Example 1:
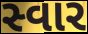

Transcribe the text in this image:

સ્વાર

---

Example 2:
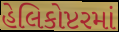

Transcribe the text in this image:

હેલિકોપ્ટરમાં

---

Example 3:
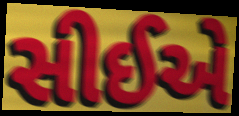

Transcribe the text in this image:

સીઈએ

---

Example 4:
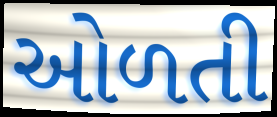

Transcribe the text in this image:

ઓળતી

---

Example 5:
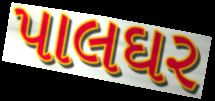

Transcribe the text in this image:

પાલઘર